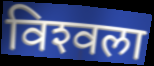
विश्वला